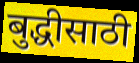
बुद्धीसाठी